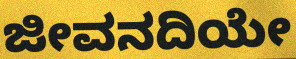
ಜೀವನದಿಯೇ